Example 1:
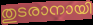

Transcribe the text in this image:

തുടരാനായി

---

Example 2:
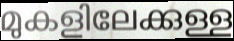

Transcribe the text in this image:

മുകളിലേക്കുള്ള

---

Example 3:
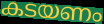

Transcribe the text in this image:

കടയണം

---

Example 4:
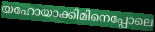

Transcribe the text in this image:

യഹോയാക്കിമിനെപ്പോലെ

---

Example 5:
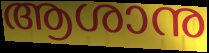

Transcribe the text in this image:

ആശാനു